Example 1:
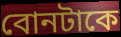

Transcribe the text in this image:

বোনটাকে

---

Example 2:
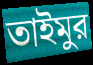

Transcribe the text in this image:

তাইমুর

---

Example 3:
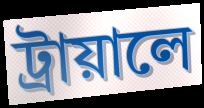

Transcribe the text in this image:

ট্রায়ালে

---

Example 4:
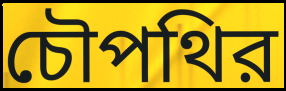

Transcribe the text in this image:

চৌপথির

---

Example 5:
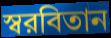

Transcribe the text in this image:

স্বরবিতান